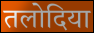
तलोदिया